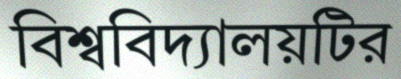
বিশ্ববিদ্যালয়টির